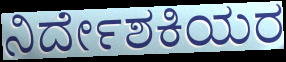
ನಿರ್ದೇಶಕಿಯರ